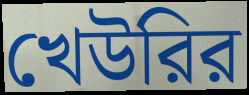
খেউরির